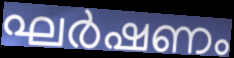
ഘർഷണം